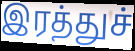
இரத்துச்